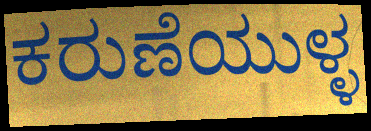
ಕರುಣೆಯುಳ್ಳ